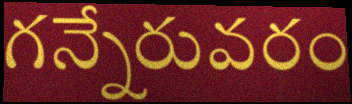
గన్నేరువరం